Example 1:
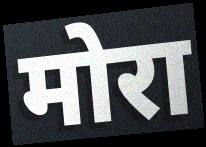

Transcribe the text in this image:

मोरा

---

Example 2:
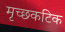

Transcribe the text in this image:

मृच्छकटिक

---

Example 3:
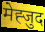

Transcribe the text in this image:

मेह्जुद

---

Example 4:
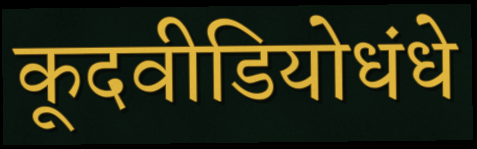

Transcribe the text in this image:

कूदवीडियोधंधे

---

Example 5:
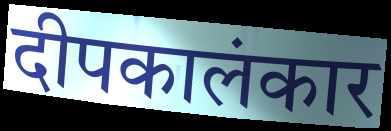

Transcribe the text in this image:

दीपकालंकार